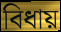
বিধায়